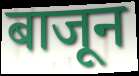
बाजून